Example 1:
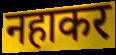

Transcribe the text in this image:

नहाकर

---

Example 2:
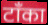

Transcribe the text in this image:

टाँका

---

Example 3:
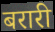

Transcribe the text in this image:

बरारी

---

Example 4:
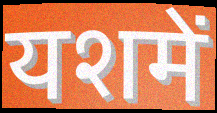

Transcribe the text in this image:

यशमें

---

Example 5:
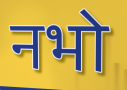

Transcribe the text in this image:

नभो